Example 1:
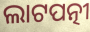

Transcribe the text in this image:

ଲାଟପତ୍ନୀ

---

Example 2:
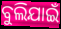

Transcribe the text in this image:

ବୁଲିଯାଇଁ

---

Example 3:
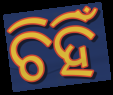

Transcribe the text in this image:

ଚିହିଁ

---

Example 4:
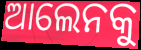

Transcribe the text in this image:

ଆଲେନକୁ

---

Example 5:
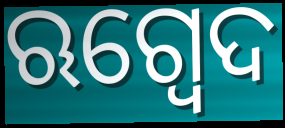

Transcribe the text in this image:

ଋଗ୍ବେଦ